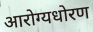
आरोग्यधोरण